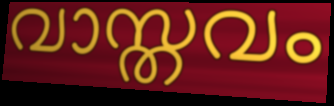
വാസ്തവം